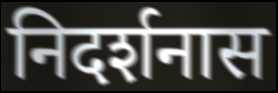
निदर्शनास